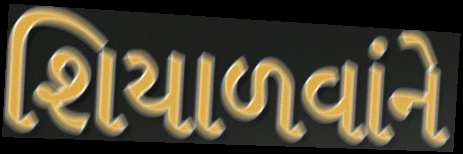
શિયાળવાંને